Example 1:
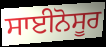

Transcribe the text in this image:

ਸਾਈਨੋਸੂਰ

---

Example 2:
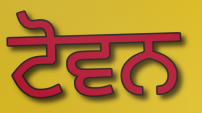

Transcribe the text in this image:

ਟੋਵਨ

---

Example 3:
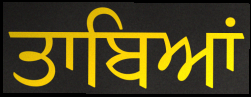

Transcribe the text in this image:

ਤਾਬਿਆਂ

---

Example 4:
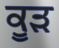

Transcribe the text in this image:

ਕੂੜ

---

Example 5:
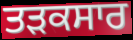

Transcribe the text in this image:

ਤੜਕਸਾਰ